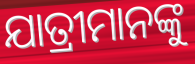
ଯାତ୍ରୀମାନଙ୍କୁ